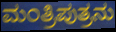
ಮಂತ್ರಿಪುತ್ರನು